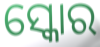
ସ୍କୋର